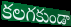
కలగకుండా